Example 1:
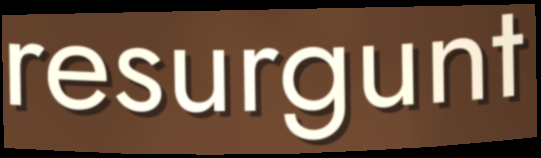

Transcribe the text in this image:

resurgunt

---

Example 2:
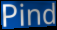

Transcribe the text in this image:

Pind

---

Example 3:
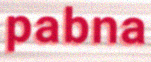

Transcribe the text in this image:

pabna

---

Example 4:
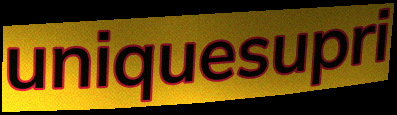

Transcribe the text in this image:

uniquesupri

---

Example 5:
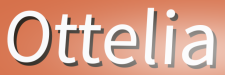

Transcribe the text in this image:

Ottelia